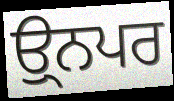
ਉ੍ਨਪਰ